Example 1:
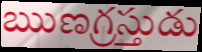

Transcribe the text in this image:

ఋణగ్రస్తుడు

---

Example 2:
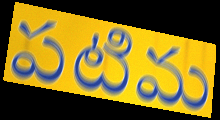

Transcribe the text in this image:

పటిమ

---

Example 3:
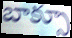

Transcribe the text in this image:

బాక్సూ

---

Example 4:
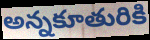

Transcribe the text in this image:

అన్నకూతురికి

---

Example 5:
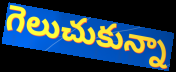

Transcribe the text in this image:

గెలుచుకున్నా